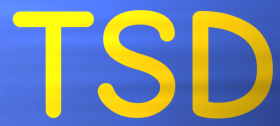
TSD